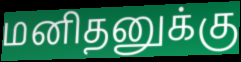
மனிதனுக்கு